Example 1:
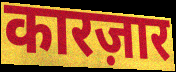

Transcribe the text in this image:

कारज़ार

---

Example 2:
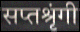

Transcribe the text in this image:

सप्तश्रृंगी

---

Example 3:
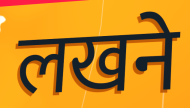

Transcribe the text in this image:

लखने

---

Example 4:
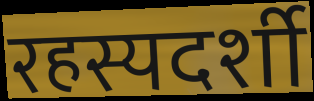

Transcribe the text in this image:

रहस्यदर्शी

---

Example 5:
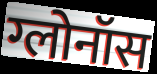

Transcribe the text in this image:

ग्लोनॉस